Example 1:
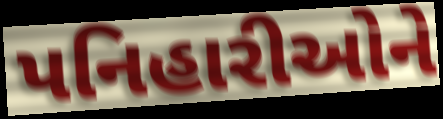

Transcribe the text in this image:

પનિહારીઓને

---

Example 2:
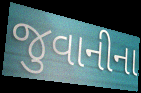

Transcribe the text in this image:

જુવાનીના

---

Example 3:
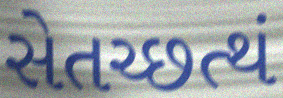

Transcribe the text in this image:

સેતચ્છત્થં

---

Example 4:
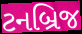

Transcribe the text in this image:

ટનબ્રિજ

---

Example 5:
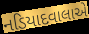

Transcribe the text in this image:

નડિયાદવાલાએ